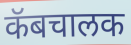
कॅबचालक